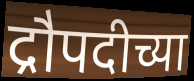
द्रौपदीच्या